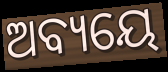
ଅବ୍ୟୟେ